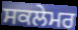
ਸਕਲੇਮਰ